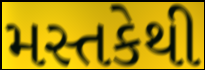
મસ્તકેથી